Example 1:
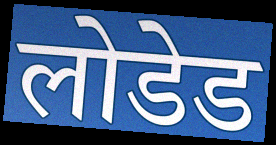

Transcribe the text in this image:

लोडेड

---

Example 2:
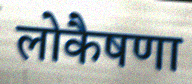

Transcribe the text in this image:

लोकैषणा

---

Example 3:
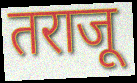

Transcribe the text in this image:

तराजू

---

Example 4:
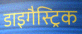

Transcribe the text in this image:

डाइगैस्ट्रिक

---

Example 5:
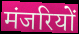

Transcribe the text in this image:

मंजरियों